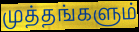
முத்தங்களும்